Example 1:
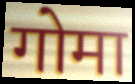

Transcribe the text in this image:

गोमा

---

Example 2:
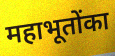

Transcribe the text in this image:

महाभूतोंका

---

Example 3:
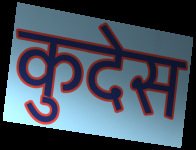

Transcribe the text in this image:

कुदेस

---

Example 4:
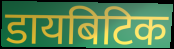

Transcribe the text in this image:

डायबिटिक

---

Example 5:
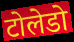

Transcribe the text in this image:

टोलेडो